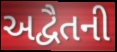
અદ્વૈતની